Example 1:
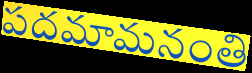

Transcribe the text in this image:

పదమామనంతి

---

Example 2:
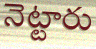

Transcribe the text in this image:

నెట్టారు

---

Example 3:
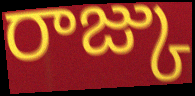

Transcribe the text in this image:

రాజ్కు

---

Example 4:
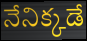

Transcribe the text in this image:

నేనిక్కడే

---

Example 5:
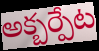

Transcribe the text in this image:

అక్బర్పేట